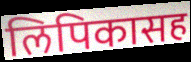
लिपिकासह